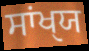
ਸਾਂਖੑਯ